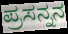
ಪ್ರಸನ್ನನ